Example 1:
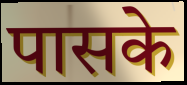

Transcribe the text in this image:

पासके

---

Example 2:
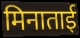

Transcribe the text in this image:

मिनाताई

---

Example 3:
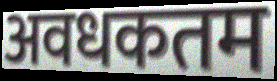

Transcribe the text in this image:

अवधकतम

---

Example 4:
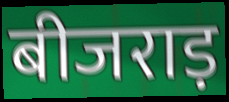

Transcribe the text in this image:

बीजराड़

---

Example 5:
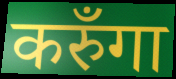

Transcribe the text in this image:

करुँगा